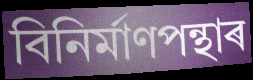
বিনিৰ্মাণপন্থাৰ